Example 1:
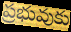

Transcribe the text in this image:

ప్రభువుకు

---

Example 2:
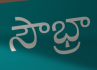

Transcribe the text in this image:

సౌభ్రా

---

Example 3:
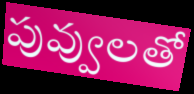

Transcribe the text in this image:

పువ్వులతో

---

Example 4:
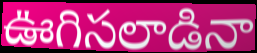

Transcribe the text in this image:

ఊగిసలాడినా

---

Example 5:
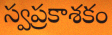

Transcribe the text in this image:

స్వప్రకాశకం